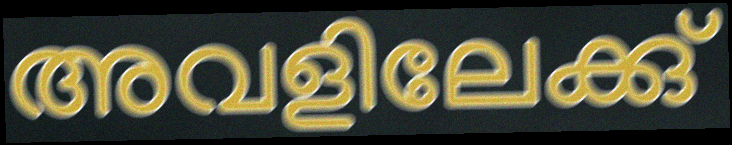
അവളിലേക്കു്